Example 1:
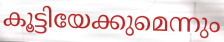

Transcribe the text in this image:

കൂട്ടിയേക്കുമെന്നും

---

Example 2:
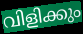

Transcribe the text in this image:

വിളിക്കും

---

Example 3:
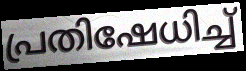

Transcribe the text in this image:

പ്രതിഷേധിച്ച്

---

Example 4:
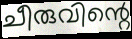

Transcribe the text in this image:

ചീരുവിന്റെ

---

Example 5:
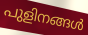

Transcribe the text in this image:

പുളിനങ്ങൾ